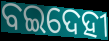
ବଇଦେହୀ